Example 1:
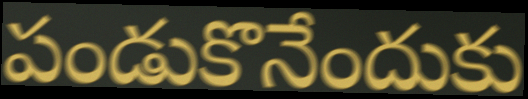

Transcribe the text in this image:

పండుకొనేందుకు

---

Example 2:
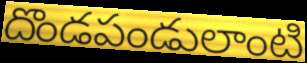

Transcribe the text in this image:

దొండపండులాంటి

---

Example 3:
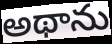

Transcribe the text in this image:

అథాను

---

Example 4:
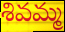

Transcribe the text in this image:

శివమ్మ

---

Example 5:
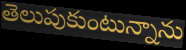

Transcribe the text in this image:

తెలుపుకుంటున్నాను